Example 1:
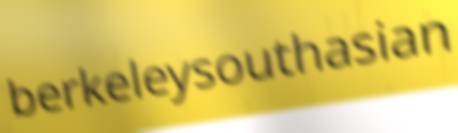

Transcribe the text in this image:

berkeleysouthasian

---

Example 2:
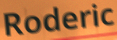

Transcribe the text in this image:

Roderic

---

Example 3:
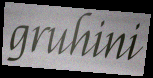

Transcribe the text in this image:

gruhini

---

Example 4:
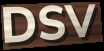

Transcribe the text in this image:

DSV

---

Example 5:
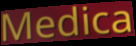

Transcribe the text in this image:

Medica